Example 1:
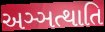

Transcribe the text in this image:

અઞ્ઞત્થાતિ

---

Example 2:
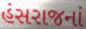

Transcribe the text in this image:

હંસરાજનાં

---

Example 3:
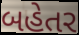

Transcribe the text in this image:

બહેતર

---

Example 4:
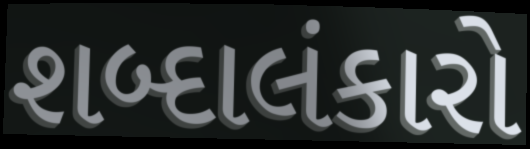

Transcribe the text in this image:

શબ્દાલંકારો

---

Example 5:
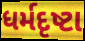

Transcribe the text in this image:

ધર્મદૃષ્ટા